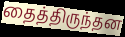
தைத்திருந்தன